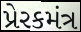
પ્રેરકમંત્ર